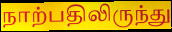
நாற்பதிலிருந்து